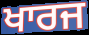
ਖਾਰਜ